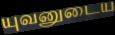
யுவனுடைய